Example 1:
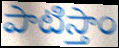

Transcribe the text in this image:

పాటిస్తాం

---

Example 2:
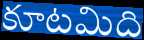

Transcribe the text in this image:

కూటమిది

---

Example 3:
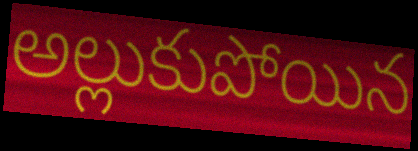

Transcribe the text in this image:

అల్లుకుపోయిన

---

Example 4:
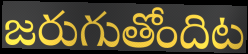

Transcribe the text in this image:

జరుగుతోందిట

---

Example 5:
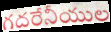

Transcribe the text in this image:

గదరేనీయుల